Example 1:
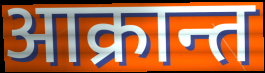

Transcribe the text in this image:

आक्रान्त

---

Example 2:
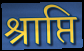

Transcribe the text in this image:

श्राप्ति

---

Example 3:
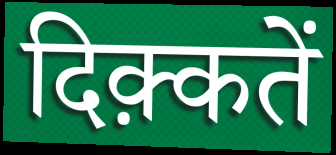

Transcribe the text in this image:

दिक़्कतें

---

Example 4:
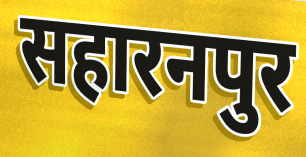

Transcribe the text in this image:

सहारनपुर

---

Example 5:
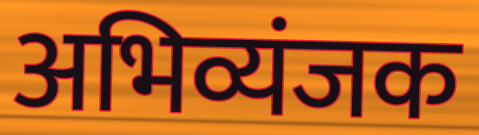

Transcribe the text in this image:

अभिव्यंजक